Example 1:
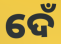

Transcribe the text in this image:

ଦେଁ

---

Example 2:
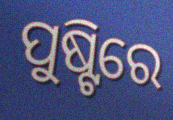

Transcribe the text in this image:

ପୁଷ୍ଟିରେ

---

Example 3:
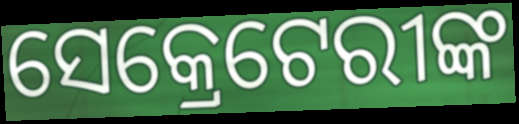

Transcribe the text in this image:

ସେକ୍ରେଟେରୀଙ୍କ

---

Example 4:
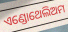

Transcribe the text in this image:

ଏଣ୍ଡୋଥେଲିଅମ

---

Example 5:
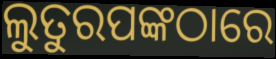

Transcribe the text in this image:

ଲୁତୁରପଙ୍କଠାରେ